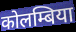
कोलम्बिया